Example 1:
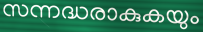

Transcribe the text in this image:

സന്നദ്ധരാകുകയും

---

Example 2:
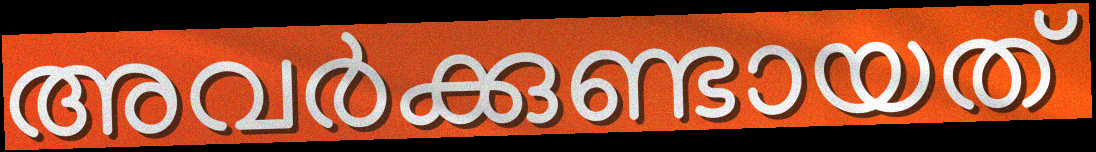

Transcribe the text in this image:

അവർക്കുണ്ടായത്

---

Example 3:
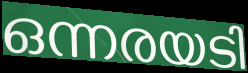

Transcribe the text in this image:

ഒന്നരയടി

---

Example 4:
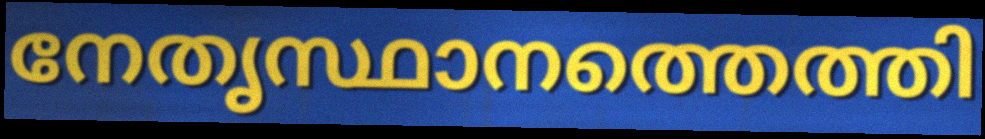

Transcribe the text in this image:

നേതൃസ്ഥാനത്തെത്തി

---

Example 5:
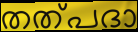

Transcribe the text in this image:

തത്പദാ